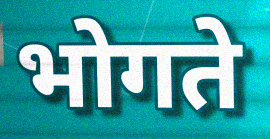
भोगते